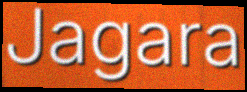
Jagara